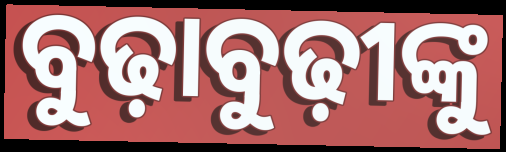
ବୁଢ଼ାବୁଢ଼ୀଙ୍କୁ